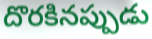
దొరకినప్పుడు